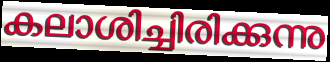
കലാശിച്ചിരിക്കുന്നു